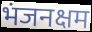
भंजनक्षम